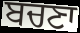
ਬਚਣਾ